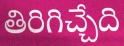
తిరిగిచ్చేది